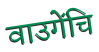
वाउगेंचि